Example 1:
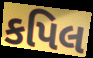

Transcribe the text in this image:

કપિલ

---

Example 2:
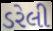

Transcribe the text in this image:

ડરેલી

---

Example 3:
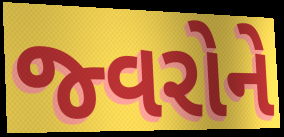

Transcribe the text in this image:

જ્વરોને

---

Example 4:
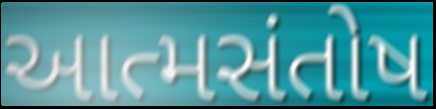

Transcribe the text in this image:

આત્મસંતોષ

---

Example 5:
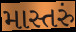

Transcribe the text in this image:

માસ્તરું